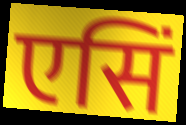
एसिं